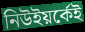
নিউইয়র্কেই